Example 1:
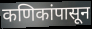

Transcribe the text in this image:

कणिकांपासून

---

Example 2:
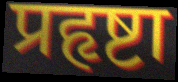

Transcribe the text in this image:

प्रहृष्टा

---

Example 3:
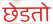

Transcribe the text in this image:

छेडतो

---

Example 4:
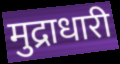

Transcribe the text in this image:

मुद्राधारी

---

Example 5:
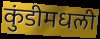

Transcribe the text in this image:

कुंडीमधली